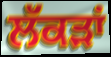
ਲੱਕੜਾਂ